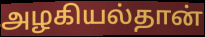
அழகியல்தான்